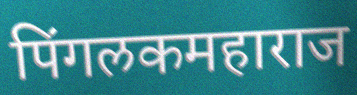
पिंगलकमहाराज